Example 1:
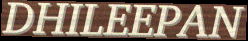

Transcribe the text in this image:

DHILEEPAN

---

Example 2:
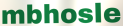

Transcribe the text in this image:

mbhosle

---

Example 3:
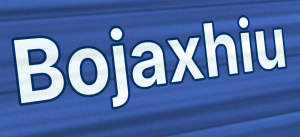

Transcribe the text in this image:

Bojaxhiu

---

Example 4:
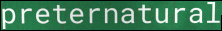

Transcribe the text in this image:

preternatural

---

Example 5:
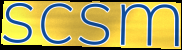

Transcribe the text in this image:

scsm